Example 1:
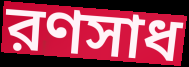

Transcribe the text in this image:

রণসাধ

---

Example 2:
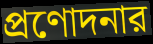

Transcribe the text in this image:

প্রণোদনার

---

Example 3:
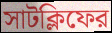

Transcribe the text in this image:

সাটক্লিফের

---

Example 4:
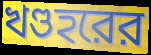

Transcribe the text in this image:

খণ্ডহরের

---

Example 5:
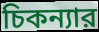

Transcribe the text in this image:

চিকন্যার